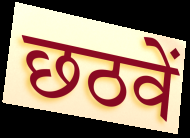
छठवें